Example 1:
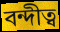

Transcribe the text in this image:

বন্দীত্ব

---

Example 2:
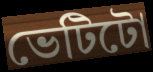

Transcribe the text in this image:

ভেটিটো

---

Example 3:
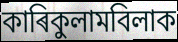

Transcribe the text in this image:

কাৰিকুলামবিলাক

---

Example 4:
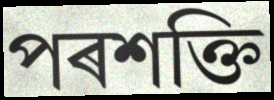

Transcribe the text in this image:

পৰশক্তি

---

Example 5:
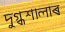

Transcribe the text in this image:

দুগ্ধশালাৰ